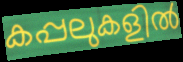
കപ്പലുകളിൽ